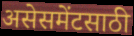
असेसमेंटसाठी